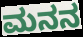
ಮನನ